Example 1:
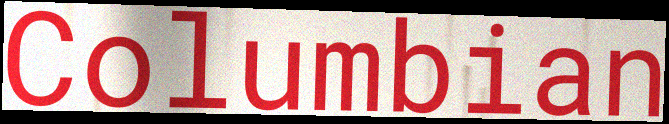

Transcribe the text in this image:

Columbian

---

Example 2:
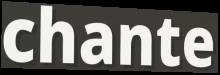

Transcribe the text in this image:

chante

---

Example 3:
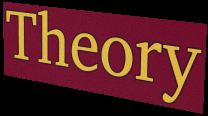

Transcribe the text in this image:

Theory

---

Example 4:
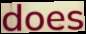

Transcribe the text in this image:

does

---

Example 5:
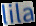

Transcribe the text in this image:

lila